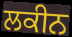
ਲਕੀਨ